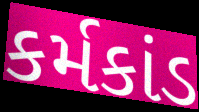
કર્મકાંડ